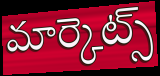
మార్కెట్స్